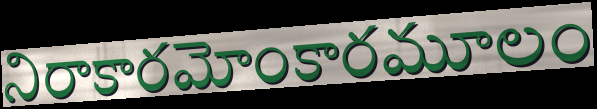
నిరాకారమోంకారమూలం